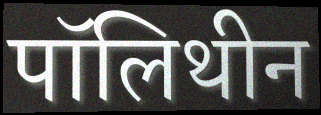
पॉलिथीन